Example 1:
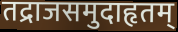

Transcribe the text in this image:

तद्राजसमुदाहृतम्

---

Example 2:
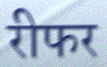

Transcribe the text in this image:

रीफर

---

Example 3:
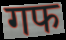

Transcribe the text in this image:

गफ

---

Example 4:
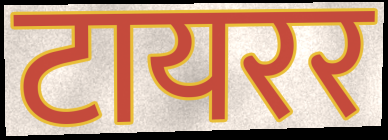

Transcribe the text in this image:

टायरर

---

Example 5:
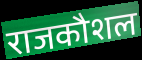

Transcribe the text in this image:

राजकौशल